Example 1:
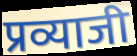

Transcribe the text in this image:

प्रव्याजी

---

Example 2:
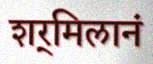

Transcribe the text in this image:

शर्मिलानं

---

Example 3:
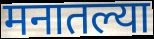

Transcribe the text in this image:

मनातल्या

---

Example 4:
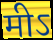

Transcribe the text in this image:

मीऽ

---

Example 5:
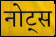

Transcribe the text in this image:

नोट्‌स